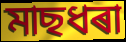
মাছধৰা